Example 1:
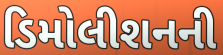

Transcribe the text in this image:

ડિમોલીશનની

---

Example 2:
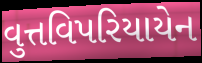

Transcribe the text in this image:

વુત્તવિપરિયાયેન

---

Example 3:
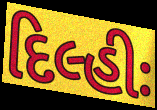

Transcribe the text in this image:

દિલ્હીઃ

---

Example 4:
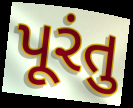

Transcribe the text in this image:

પૂરંતુ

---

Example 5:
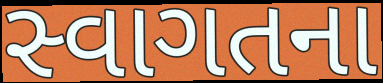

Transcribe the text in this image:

સ્વાગતના